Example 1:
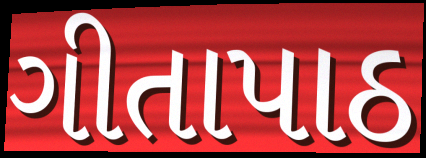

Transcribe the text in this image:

ગીતાપાઠ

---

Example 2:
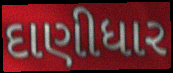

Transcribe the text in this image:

દાણીધાર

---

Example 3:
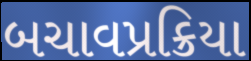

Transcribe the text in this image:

બચાવપ્રક્રિયા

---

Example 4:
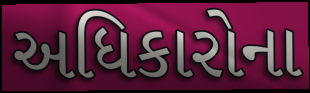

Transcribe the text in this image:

અધિકારોના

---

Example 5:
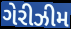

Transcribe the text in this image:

ગેરીઝીમ